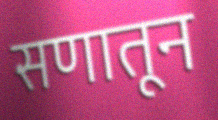
सणातून